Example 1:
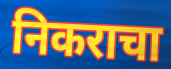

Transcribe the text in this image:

निकराचा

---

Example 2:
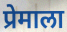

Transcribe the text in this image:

प्रेमाला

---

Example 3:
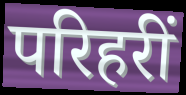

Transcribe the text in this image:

परिहरीं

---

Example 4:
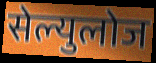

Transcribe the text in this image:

सेल्युलोज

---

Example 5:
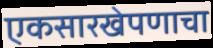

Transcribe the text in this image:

एकसारखेपणाचा